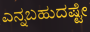
ಎನ್ನಬಹುದಷ್ಟೇ